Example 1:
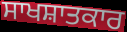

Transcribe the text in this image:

ਸਾਖਸ਼ਾਤਕਾਰ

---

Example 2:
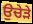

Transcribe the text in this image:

ਉਚੇੜੇ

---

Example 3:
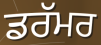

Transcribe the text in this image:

ਡਰੱਮਰ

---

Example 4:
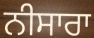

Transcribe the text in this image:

ਨੀਸਾਰਾ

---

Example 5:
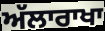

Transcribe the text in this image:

ਅੱਲਾਰਾਖਾ